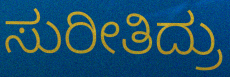
ಸುರೀತಿದ್ರು